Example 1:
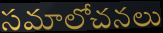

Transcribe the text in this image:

సమాలోచనలు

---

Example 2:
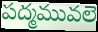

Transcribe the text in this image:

పద్మమువలె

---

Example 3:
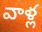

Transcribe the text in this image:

వాళ్ల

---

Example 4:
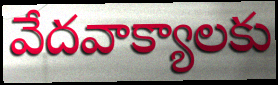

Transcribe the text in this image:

వేదవాక్యాలకు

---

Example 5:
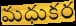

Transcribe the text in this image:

మధుకర